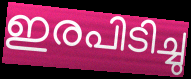
ഇരപിടിച്ചു